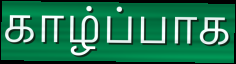
காழ்ப்பாக